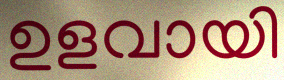
ഉളവായി